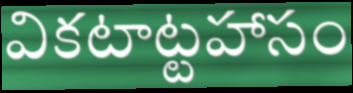
వికటాట్టహాసం